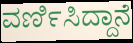
ವರ್ಣಿಸಿದ್ದಾನೆ